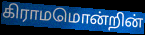
கிராமமொன்றின்